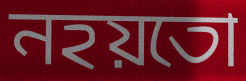
নহয়তো